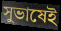
সুভাষেই